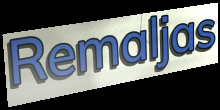
Remaljas